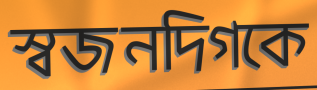
স্বজনদিগকে